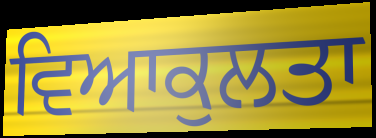
ਵਿਆਕੁਲਤਾ